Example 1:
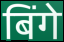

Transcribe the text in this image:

बिंगे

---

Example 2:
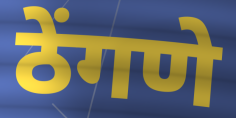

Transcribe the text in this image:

ठेंगणे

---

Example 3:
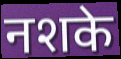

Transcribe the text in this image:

नशके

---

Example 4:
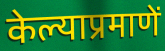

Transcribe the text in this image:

केल्याप्रमाणें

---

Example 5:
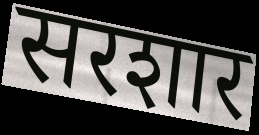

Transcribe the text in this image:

सरशार